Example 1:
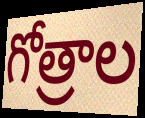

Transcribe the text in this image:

గోత్రాల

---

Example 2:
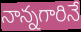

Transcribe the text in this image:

నాన్నగారినే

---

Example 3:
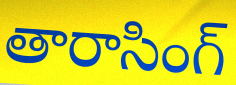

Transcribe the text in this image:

తారాసింగ్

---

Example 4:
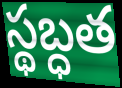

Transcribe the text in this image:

స్థబ్ధత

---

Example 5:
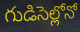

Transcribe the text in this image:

గుడిసెల్లోనో